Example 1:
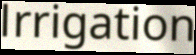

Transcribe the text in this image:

Irrigation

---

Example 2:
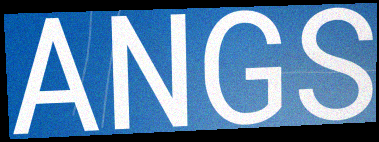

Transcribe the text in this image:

ANGS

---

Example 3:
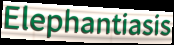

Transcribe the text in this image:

Elephantiasis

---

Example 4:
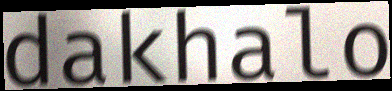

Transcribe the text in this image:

dakhalo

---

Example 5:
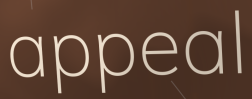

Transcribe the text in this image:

appeal